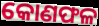
କୋଣଫଳ